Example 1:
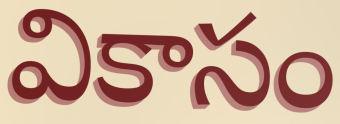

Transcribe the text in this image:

వికాసం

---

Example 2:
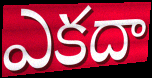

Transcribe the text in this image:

ఎకదా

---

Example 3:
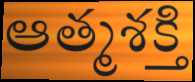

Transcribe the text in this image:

ఆత్మశక్తి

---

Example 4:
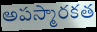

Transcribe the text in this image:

అపస్మారకత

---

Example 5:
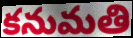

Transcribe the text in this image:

కనుమతి